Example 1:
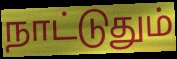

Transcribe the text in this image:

நாட்டுதும்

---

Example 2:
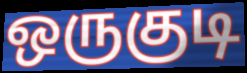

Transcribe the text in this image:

ஒருகுடி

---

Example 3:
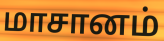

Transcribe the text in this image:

மாசானம்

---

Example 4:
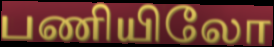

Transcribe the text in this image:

பணியிலோ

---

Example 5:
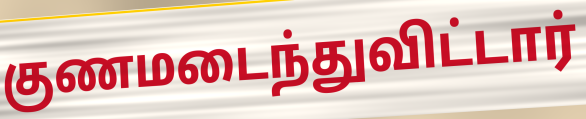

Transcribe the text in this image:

குணமடைந்துவிட்டார்